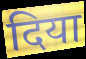
दिया